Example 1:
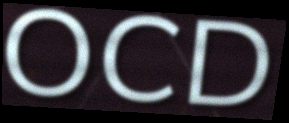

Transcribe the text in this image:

OCD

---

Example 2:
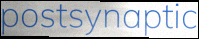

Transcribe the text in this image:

postsynaptic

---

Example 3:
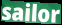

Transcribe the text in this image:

sailor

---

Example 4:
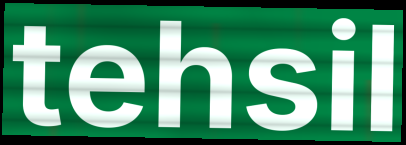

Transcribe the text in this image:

tehsil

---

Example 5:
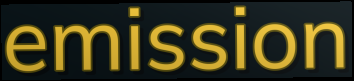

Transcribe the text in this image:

emission